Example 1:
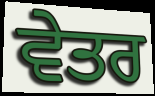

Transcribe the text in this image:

ਵੇਤਰ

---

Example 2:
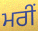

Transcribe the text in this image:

ਮਰੀਂ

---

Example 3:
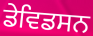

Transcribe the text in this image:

ਡੇਵਿਡਸਨ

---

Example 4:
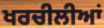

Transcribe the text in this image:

ਖਰਚੀਲੀਆਂ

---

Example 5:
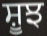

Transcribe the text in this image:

ਸ਼ੂਝ